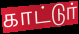
காட்டுர்